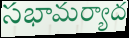
సభామర్యాద